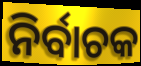
ନିର୍ବାଚକ